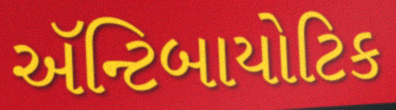
ઍન્ટિબાયોટિક